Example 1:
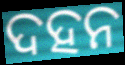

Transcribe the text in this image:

ଦହନ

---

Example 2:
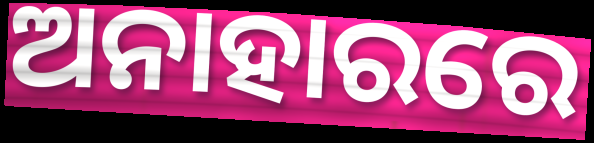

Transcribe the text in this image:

ଅନାହାରରେ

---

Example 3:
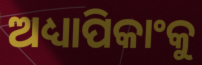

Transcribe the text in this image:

ଅଧ୍ୟାପିକାଂକୁ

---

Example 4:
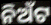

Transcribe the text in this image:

ନିଅଁଟ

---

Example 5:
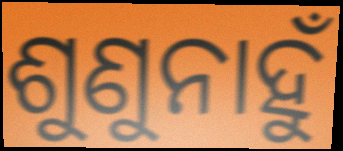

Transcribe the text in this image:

ଶୁଣୁନାହୁଁ